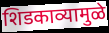
शिडकाव्यामुळे